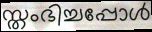
സ്തംഭിച്ചപ്പോൾ